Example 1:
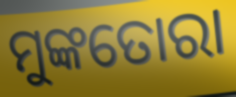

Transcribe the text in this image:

ମୁଙ୍କତୋରା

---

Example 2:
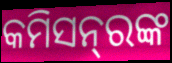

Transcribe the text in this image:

କମିସନ୍‍ରଙ୍କ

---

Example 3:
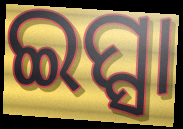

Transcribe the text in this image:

ଇପ୍ସା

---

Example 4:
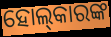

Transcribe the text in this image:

ହୋଲ୍‍କାରଙ୍କ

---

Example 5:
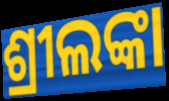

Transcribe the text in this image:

ଶ୍ରୀଲଙ୍କା